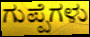
ಗುಪ್ಪೆಗಳು